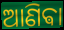
ଆଣିଵା